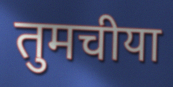
तुमचीया